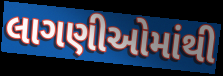
લાગણીઓમાંથી